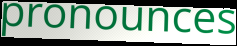
pronounces